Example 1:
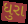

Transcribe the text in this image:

ધુરા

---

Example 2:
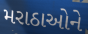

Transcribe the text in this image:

મરાઠાઓને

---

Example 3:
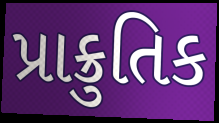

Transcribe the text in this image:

પ્રાક્રુતિક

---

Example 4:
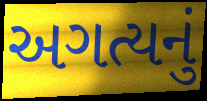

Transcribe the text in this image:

અગત્યનું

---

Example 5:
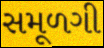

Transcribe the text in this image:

સમૂળગી